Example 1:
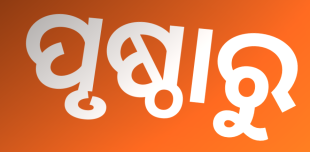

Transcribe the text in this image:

ପୃଷ୍ଠାରୁ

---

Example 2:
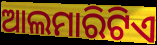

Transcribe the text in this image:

ଆଲମାରିଟିଏ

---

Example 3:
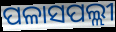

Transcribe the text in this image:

ପଳାସପଲ୍ଲୀ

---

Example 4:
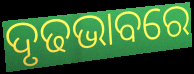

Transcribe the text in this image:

ଦୃଢଭାବରେ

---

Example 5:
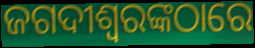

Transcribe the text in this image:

ଜଗଦୀଶ୍ୱରଙ୍କଠାରେ